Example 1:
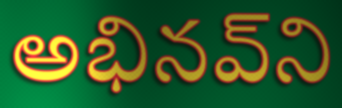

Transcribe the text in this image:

అభినవ్‌ని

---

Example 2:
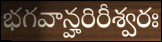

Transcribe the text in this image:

భగవాన్హరిరీశ్వరః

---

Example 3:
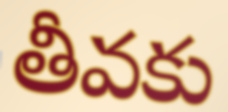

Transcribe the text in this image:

తీవకు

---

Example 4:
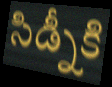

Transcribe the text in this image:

సిడ్నీకి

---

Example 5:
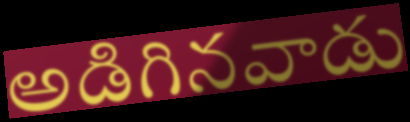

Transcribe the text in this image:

అడిగినవాడు